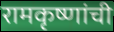
रामकृष्णांची